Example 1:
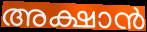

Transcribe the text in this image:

അക്ഷാൻ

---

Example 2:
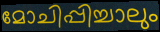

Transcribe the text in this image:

മോചിപ്പിച്ചാലും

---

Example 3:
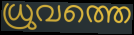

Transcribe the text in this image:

ധ്രുവത്തെ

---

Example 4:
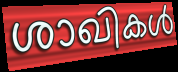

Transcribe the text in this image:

ശാഖികൾ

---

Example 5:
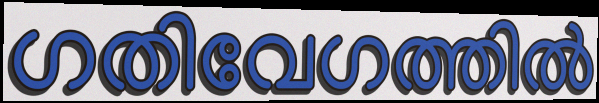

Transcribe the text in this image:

ഗതിവേഗത്തിൽ